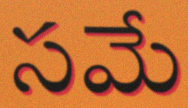
సమే